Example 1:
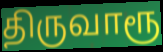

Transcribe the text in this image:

திருவாரூ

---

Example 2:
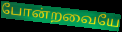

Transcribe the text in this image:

போன்றவையே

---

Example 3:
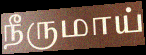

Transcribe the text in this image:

நீருமாய்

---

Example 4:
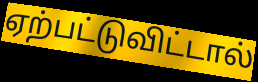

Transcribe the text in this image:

ஏற்பட்டுவிட்டால்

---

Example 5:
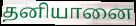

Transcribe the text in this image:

தனியானை